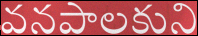
వనపాలకుని